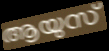
ആയുസ്